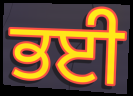
ਭਈ